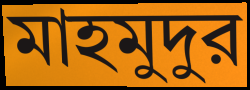
মাহমুদুর